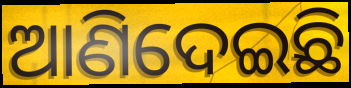
ଆଣିଦେଇଛି